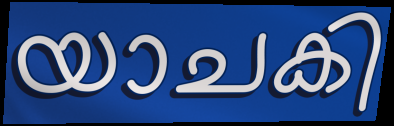
യാചകി